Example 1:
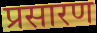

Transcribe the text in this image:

प्रसारण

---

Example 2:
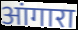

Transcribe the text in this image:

आंगारा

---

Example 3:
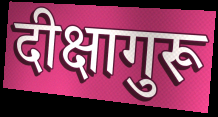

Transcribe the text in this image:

दीक्षागुरू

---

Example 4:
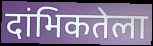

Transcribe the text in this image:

दांभिकतेला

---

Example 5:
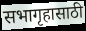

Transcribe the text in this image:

सभागृहासाठी